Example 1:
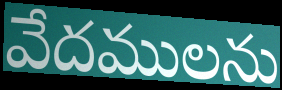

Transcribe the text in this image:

వేదములను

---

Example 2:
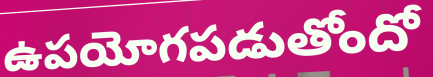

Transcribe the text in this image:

ఉపయోగపడుతోందో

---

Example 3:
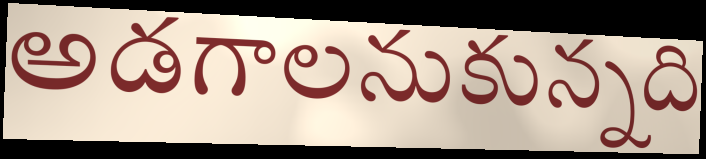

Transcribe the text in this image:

అడగాలనుకున్నది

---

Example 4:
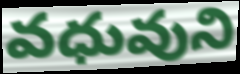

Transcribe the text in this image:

వధువుని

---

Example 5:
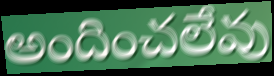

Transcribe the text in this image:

అందించలేవు